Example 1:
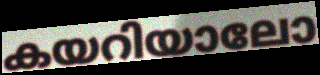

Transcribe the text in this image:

കയറിയാലോ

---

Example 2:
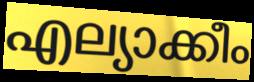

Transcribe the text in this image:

എല്യാക്കീം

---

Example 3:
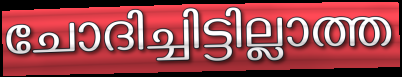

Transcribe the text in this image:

ചോദിച്ചിട്ടില്ലാത്ത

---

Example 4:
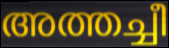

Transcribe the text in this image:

അത്തച്ചീ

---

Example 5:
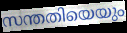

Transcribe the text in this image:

സന്തതിയെയും